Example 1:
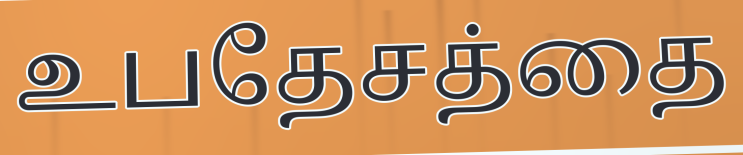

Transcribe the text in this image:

உபதேசத்தை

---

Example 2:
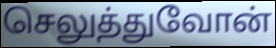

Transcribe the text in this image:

செலுத்துவோன்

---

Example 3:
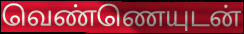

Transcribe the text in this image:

வெண்ணெயுடன்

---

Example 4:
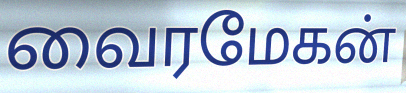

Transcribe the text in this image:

வைரமேகன்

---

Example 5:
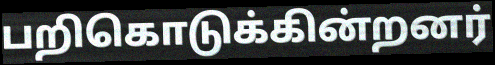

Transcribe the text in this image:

பறிகொடுக்கின்றனர்